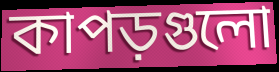
কাপড়গুলো